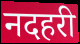
नदहरी